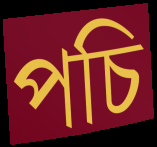
পচি